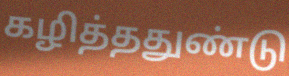
கழித்ததுண்டு